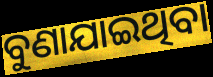
ବୁଣାଯାଇଥିବା